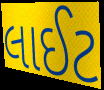
લાઈટ